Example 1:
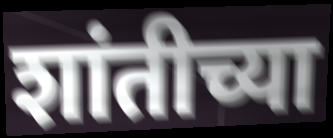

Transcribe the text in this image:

शांतीच्या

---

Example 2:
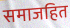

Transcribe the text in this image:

समाजहित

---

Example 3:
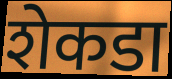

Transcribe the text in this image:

शेकडा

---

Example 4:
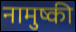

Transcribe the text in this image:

नामुष्की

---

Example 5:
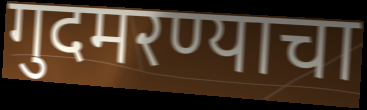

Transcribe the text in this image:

गुदमरण्याचा